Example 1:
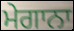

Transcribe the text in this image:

ਮੇਗਾਨਾ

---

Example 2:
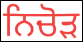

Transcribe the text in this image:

ਨਿਚੋੜ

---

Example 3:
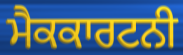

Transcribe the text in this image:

ਮੈਕਕਾਰਟਨੀ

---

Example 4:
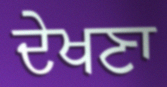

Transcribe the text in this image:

ਦੇਖਣਾ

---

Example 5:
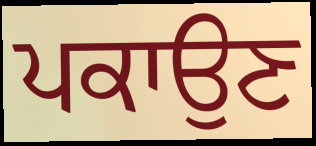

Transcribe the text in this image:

ਪਕਾਉਣ